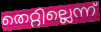
തെറ്റില്ലെന്ന്